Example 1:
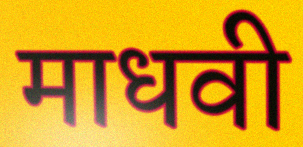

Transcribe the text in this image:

माधवी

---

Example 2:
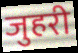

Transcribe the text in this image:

जुहरी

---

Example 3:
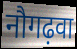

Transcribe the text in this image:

नौगढ़वा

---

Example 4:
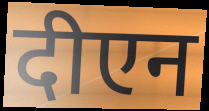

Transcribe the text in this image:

दीएन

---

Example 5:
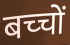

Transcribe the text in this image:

बच्‍चों